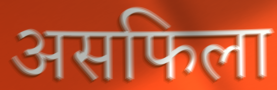
असफिला